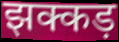
झक्कड़